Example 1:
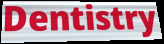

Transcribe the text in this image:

Dentistry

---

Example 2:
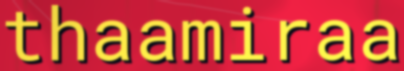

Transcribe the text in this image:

thaamiraa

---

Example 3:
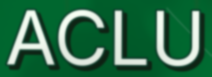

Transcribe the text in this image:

ACLU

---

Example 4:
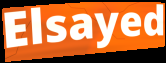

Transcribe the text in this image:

Elsayed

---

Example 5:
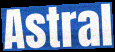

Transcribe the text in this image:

Astral